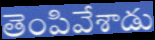
తెంపివేశాడు